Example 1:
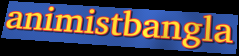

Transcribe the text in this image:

animistbangla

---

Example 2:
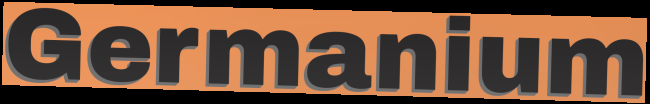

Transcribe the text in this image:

Germanium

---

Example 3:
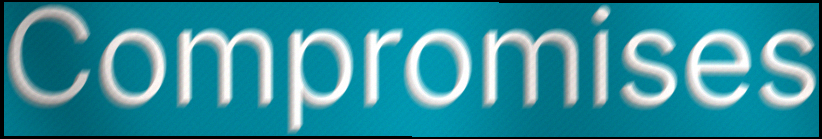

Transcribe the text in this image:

Compromises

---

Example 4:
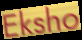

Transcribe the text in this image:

Eksho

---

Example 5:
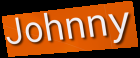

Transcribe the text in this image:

Johnny